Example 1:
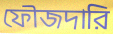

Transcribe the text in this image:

ফৌজদারি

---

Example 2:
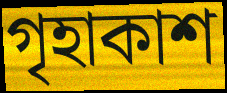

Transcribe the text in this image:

গৃহাকাশ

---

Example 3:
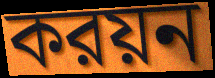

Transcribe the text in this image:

করয়ন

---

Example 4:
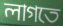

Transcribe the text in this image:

লাগতে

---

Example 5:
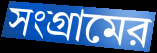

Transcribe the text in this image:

সংগ্রামের